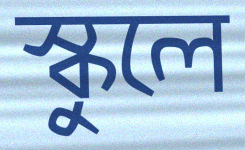
স্কুলে